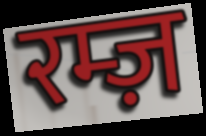
रम्ज़